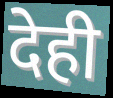
देही